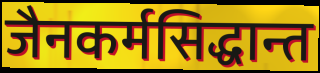
जैनकर्मसिद्धान्त